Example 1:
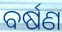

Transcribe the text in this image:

ବର୍ଷଣ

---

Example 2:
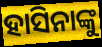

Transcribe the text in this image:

ହାସିନାଙ୍କୁ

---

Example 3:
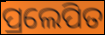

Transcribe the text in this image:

ପ୍ରଲେପିତ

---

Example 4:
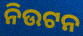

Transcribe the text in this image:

ନିଉଟନ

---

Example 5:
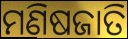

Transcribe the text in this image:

ମଣିଷଜାତି